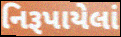
નિરૂપાયેલાં